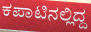
ಕಪಾಟಿನಲ್ಲಿದ್ದ